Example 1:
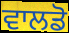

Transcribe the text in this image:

ਵਾਲਡੋ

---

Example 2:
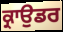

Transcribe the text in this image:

ਕ੍ਰਾਉਡਰ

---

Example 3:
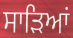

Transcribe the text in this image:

ਸਾੜਿਆਂ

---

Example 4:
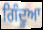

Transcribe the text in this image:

ਗਿੰਦੂਆ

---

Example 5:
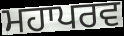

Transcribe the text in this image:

ਮਹਾਪਰਵ